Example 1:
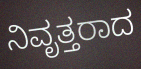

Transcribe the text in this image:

ನಿವೃತ್ತರಾದ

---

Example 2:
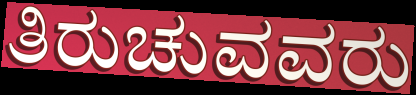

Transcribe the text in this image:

ತಿರುಚುವವರು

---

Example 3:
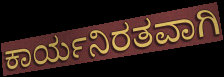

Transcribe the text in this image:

ಕಾರ್ಯನಿರತವಾಗಿ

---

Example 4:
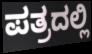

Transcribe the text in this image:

ಪತ್ರದಲ್ಲಿ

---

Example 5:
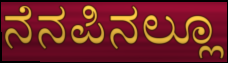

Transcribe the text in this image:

ನೆನಪಿನಲ್ಲೂ